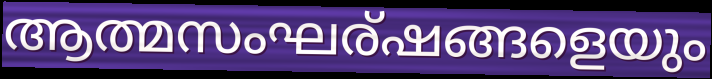
ആത്മസംഘര്ഷങ്ങളെയും